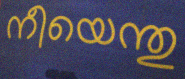
നീയെന്തു